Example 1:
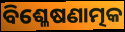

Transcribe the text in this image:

ବିଶ୍ଳେଷଣାତ୍ମକ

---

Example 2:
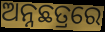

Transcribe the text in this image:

ଅନ୍ନଛତ୍ରରେ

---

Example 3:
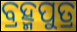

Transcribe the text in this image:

ବ୍ରହ୍ମପୁତ୍ର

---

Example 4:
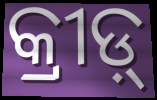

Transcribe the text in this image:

କ୍ରୀଡ଼୍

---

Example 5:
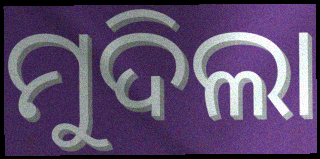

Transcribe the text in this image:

ମୁଦିଲା